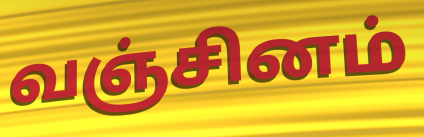
வஞ்சினம்